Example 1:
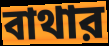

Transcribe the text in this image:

বাথার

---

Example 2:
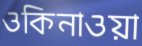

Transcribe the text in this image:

ওকিনাওয়া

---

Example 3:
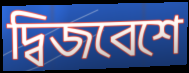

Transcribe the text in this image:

দ্বিজবেশে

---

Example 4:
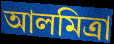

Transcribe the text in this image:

আলমিত্রা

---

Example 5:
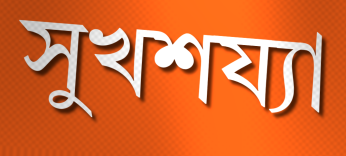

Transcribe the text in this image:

সুখশয্যা